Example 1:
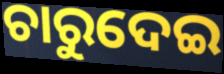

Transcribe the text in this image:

ଚାରୁଦେଇ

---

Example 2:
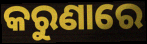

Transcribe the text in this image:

କରୁଣାରେ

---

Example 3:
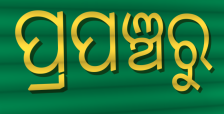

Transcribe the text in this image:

ପ୍ରପଞ୍ଚରୁ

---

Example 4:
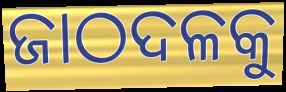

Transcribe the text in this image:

ଜାଠଦଳକୁ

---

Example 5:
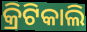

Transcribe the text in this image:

କ୍ରିଟିକାଲି